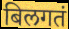
बिलगतं